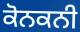
ਕੋਨਕਨੀ